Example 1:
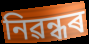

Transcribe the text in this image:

নিৱন্ধৰ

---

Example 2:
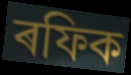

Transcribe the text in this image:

ৰফিক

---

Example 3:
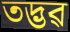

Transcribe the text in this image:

তদ্ভৱ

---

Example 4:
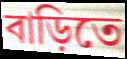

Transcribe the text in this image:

বাড়িতে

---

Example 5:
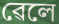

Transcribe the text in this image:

ৱেলে